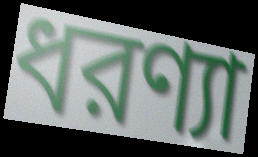
ধরণ্যা